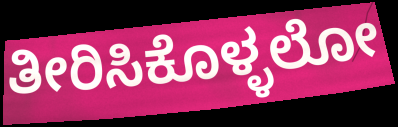
ತೀರಿಸಿಕೊಳ್ಳಲೋ